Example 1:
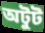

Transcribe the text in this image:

অটুট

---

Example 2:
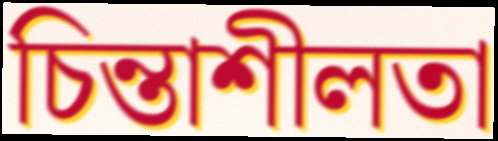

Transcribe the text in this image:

চিন্তাশীলতা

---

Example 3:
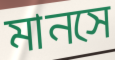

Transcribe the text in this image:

মানসে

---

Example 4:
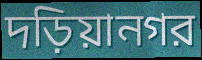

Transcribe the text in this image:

দড়িয়ানগর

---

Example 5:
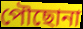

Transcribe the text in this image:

পৌছোনা